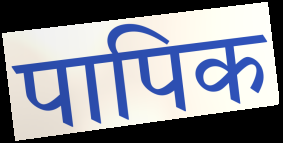
पापिक